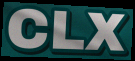
CLX